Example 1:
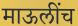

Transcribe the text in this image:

माऊलींच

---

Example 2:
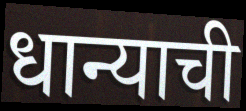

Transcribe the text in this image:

धान्याची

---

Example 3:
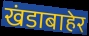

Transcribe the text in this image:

खंडाबाहेर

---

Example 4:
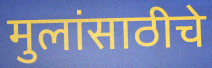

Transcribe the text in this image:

मुलांसाठीचे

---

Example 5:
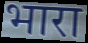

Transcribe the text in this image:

भारा